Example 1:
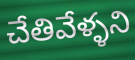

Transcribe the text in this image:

చేతివేళ్ళని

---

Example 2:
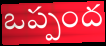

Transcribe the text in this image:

ఒప్పంద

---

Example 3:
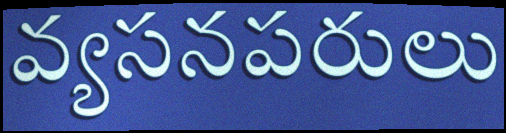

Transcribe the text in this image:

వ్యసనపరులు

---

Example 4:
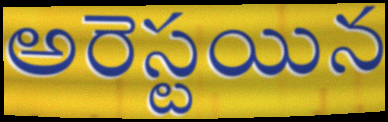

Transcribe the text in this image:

అరెస్టయిన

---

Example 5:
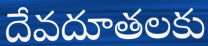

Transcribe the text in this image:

దేవదూతలకు